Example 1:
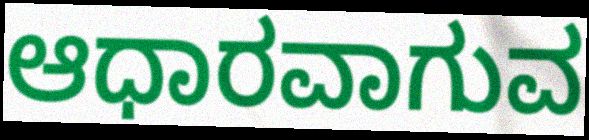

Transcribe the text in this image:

ಆಧಾರವಾಗುವ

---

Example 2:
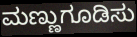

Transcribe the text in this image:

ಮಣ್ಣುಗೂಡಿಸು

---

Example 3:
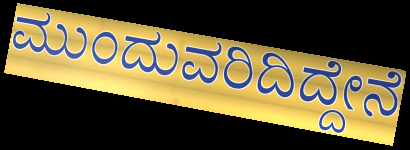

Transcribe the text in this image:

ಮುಂದುವರಿದಿದ್ದೇನೆ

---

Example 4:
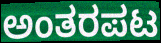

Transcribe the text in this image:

ಅಂತರಪಟ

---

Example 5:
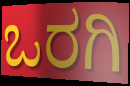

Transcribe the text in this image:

ಒರಗಿ